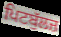
ਪਿਟਬੁੱਲਜ਼